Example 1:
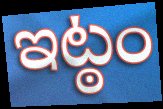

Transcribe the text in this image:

ఇట్ఠం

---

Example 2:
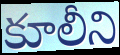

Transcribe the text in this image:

కూలీని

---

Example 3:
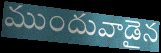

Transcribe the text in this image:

ముందువాడైన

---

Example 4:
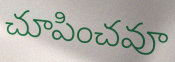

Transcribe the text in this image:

చూపించవూ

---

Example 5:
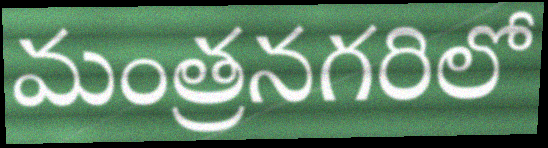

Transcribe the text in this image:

మంత్రనగరిలో